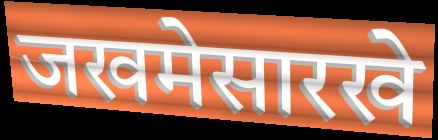
जखमेसारखे